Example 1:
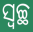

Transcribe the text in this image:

ସ୍ଵଚ୍ଛ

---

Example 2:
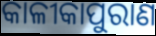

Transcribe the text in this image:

କାଳୀକାପୁରାଣ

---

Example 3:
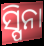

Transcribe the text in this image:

ସ୍ପିନା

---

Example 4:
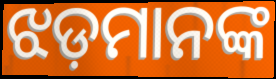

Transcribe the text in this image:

ଝଡ଼ମାନଙ୍କ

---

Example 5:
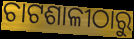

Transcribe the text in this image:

ଚାଟଶାଳୀଠାରୁ